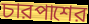
চারপাশের